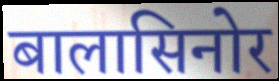
बालासिनोर